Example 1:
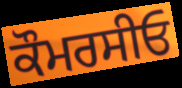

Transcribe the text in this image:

ਕੌਮਰਸੀਓ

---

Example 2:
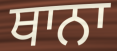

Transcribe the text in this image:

ਥਾਨਾ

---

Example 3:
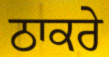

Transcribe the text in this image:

ਠਾਕਰੇ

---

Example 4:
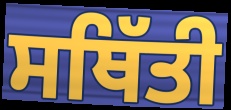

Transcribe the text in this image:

ਸਥਿੱਤੀ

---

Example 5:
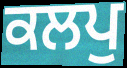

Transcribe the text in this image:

ਕਲਪੁ